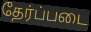
தேர்ப்படை